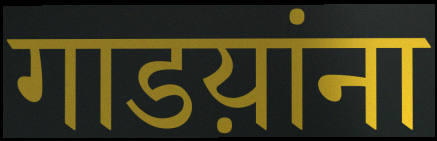
गाडय़ांना